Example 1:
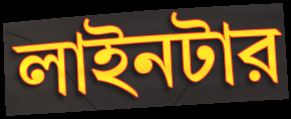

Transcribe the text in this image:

লাইনটার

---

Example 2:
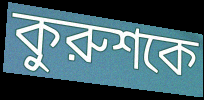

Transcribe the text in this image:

কুরুশকে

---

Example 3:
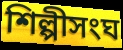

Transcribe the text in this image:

শিল্পীসংঘ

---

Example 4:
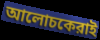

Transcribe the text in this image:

আলোচকেরাই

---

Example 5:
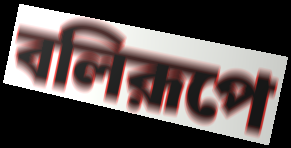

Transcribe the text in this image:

বলিরূপে